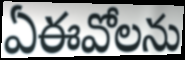
ఏఈవోలను